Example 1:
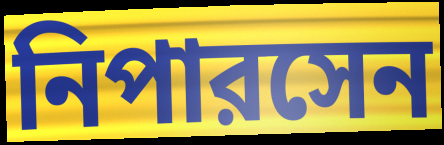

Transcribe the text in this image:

নিপারসেন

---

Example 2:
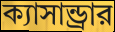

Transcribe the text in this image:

ক্যাসান্ড্রার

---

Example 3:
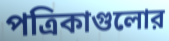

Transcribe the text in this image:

পত্রিকাগুলোর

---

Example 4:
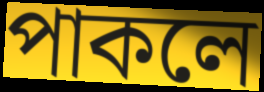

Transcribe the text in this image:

পাকলে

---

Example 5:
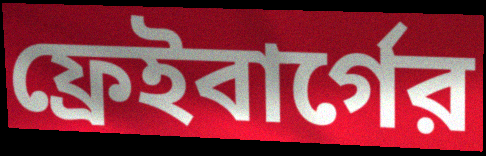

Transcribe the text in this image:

ফ্রেইবার্গের